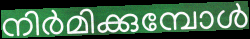
നിർമിക്കുമ്പോൾ